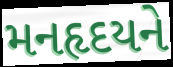
મનહૃદયને